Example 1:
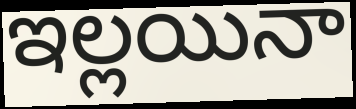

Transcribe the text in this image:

ఇల్లయినా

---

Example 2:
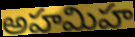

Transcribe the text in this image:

అహమిహ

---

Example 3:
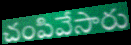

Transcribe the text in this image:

చంపివేసారు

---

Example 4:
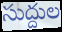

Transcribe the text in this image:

సుద్దుల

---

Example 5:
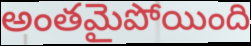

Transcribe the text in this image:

అంతమైపోయింది